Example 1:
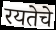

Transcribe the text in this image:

रयतेचे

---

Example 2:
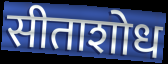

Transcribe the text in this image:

सीताशोध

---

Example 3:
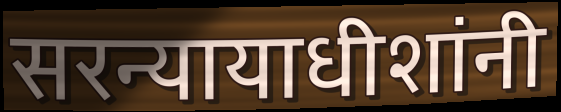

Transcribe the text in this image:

सरन्यायाधीशांनी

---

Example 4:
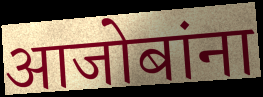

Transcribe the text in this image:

आजोबांना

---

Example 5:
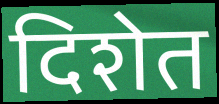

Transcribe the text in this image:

दिशेत